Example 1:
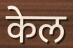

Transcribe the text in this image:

केल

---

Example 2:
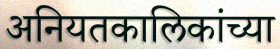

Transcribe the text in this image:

अनियतकालिकांच्या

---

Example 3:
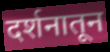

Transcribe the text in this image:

दर्शनातून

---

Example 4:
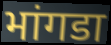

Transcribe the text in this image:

भांगडा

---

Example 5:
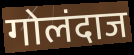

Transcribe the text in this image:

गोलंदाज